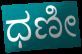
ಧಣೀ